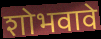
शोभवावे